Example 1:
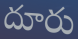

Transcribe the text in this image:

దూరు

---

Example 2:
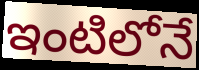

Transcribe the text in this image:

ఇంటిలోనే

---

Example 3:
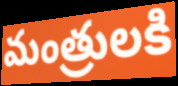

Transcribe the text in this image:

మంత్రులకి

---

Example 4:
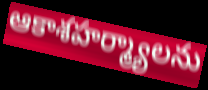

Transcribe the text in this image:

ఆకాశహర్మ్యాలను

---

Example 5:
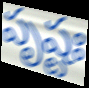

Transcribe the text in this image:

పృష్టః